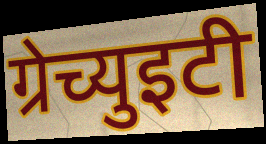
ग्रेच्युइटी